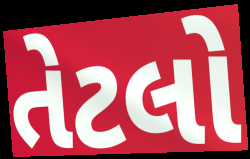
તેટલો